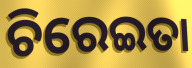
ଚିରେଇତା